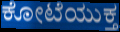
ಕೋಟೆಯುಕ್ತ